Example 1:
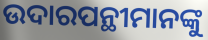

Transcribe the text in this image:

ଉଦାରପନ୍ଥୀମାନଙ୍କୁ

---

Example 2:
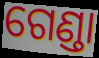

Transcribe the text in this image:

ଗେଣ୍ଡା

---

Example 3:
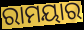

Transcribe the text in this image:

ରାମୟାର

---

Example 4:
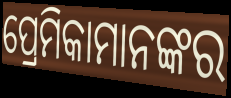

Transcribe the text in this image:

ପ୍ରେମିକାମାନଙ୍କର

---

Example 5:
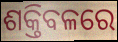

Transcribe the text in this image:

ଶକ୍ତିବଳରେ